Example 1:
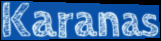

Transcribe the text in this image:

Karanas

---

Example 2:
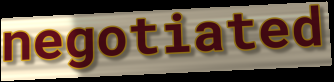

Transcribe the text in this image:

negotiated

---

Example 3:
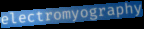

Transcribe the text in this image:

electromyography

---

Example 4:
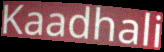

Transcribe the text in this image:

Kaadhali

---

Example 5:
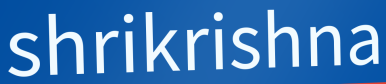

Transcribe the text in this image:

shrikrishna